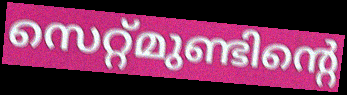
സെറ്റ്മുണ്ടിന്റെ